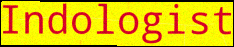
Indologist